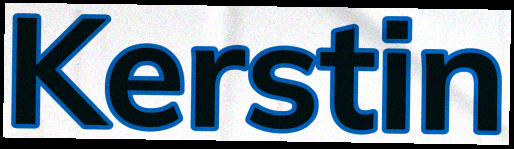
Kerstin